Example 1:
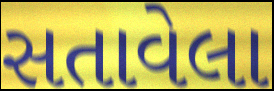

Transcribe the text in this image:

સતાવેલા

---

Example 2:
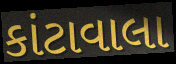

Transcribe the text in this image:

કાંટાવાલા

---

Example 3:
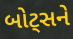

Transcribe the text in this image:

બોટ્સને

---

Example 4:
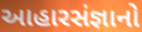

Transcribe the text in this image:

આહારસંજ્ઞાનો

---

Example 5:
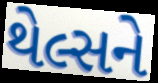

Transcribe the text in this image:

થેલ્સને